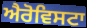
ਐਰੋਵਿਸਟਾ